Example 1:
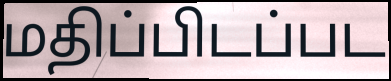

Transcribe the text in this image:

மதிப்பிடப்பட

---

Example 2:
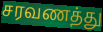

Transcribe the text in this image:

சரவணத்து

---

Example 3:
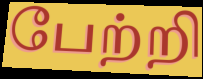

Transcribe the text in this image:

பேற்றி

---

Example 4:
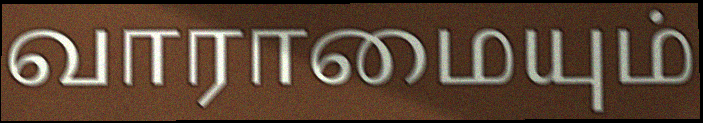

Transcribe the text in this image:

வாராமையும்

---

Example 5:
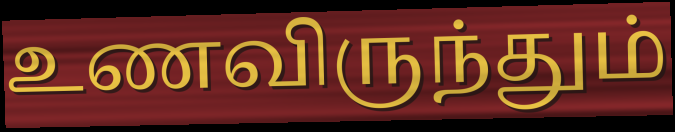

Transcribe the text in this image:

உணவிருந்தும்